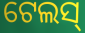
ଟେଲସ୍